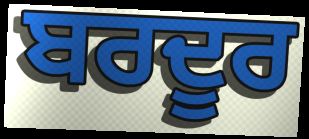
ਬਰਦੂਰ